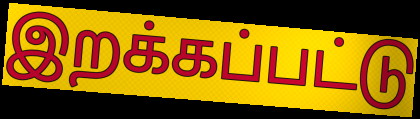
இறக்கப்பட்டு